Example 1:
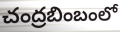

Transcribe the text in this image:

చంద్రబింబంలో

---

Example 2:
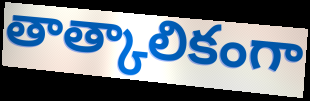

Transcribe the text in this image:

తాత్కాలికంగా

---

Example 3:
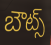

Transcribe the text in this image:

బౌట్స్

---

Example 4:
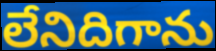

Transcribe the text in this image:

లేనిదిగాను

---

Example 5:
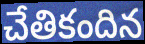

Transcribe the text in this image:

చేతికందిన